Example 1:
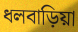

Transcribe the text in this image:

ধলবাড়িয়া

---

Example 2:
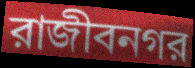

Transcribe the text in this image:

রাজীবনগর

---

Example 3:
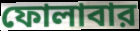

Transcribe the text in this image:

ফোলাবার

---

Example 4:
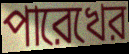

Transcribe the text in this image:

পারেখের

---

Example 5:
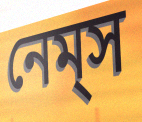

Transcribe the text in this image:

নেম্‌স